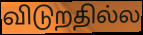
விடுறதில்ல